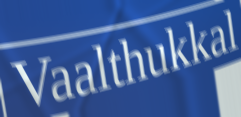
Vaalthukkal